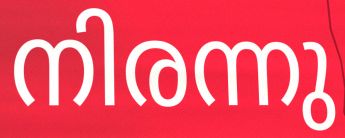
നിരന്നു